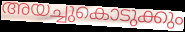
അയച്ചുകൊടുക്കും